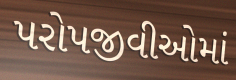
પરોપજીવીઓમાં